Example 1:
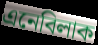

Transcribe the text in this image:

এনেবিলাক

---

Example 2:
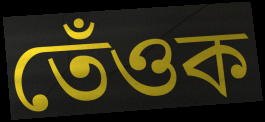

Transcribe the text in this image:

তেঁওক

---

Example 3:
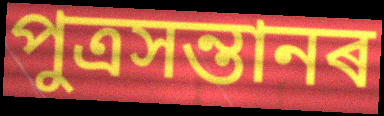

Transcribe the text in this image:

পুত্ৰসন্তানৰ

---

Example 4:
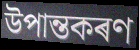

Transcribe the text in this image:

উপান্তকৰণ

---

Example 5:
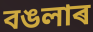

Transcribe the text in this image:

বঙলাৰ